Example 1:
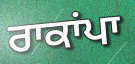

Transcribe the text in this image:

ਰਾਕਾਂਪਾ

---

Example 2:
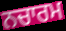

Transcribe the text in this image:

ਨਚਾਰਮ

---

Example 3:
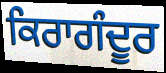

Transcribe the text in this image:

ਕਿਰਾਗੰਦੂਰ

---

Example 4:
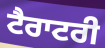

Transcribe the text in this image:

ਟੈਰਾਟਰੀ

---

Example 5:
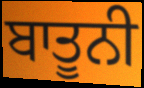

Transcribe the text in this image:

ਬਾਤੂਨੀ